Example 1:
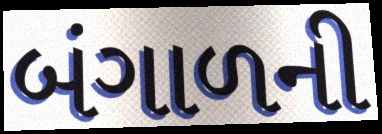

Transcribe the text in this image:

બંગાળની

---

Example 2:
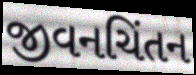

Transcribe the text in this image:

જીવનચિંતન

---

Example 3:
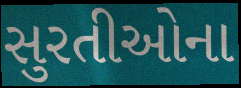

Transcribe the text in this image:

સુરતીઓના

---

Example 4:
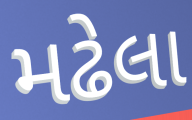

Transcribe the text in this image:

મઢેલા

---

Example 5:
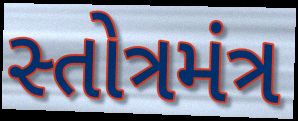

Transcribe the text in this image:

સ્તોત્રમંત્ર